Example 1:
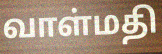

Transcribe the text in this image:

வாள்மதி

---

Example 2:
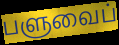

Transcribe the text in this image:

பளுவைப்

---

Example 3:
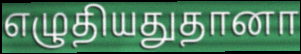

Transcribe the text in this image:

எழுதியதுதானா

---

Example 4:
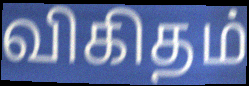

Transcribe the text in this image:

விகிதம்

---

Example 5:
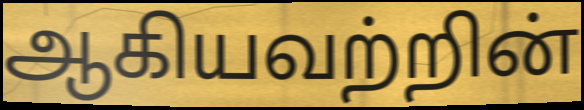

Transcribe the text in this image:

ஆகியவற்றின்